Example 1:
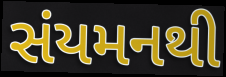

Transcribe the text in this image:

સંયમનથી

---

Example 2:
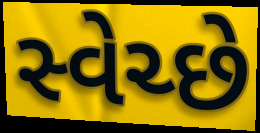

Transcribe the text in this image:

સ્વેચ્છે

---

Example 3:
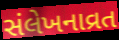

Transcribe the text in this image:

સંલેખનાવ્રત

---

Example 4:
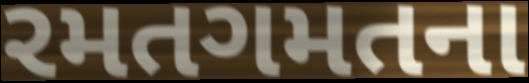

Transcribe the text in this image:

રમતગમતના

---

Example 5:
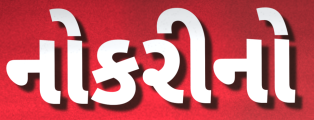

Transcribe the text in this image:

નોકરીનો